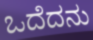
ಒದೆದನು